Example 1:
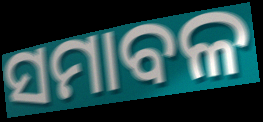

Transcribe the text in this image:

ସମାବଳ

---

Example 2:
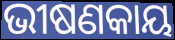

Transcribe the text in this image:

ଭୀଷଣକାୟ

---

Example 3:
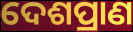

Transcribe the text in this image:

ଦେଶପ୍ରାଣ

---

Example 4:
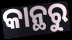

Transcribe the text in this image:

କାନ୍ଥରୁ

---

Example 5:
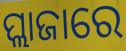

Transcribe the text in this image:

ପ୍ଲାଜାରେ